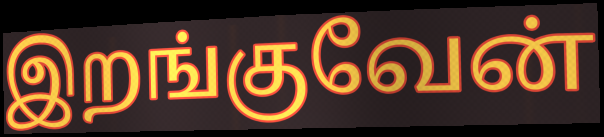
இறங்குவேன்